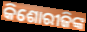
କିଶୋରୀଜିଙ୍କ